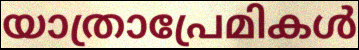
യാത്രാപ്രേമികൾ